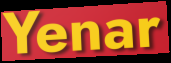
Yenar